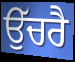
ਉੱਚਰੈ